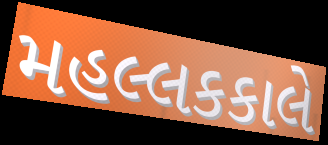
મહલ્લકકાલે